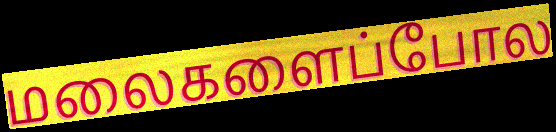
மலைகளைப்போல